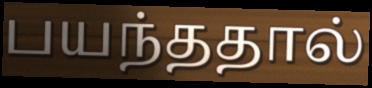
பயந்ததால்